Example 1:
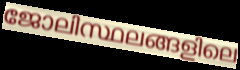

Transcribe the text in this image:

ജോലിസ്ഥലങ്ങളിലെ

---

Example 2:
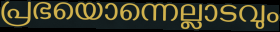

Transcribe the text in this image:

പ്രഭയൊന്നെല്ലാടവും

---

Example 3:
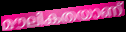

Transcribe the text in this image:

മൗലികതയാണ്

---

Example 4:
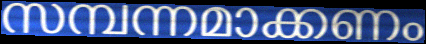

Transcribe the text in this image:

സമ്പന്നമാക്കണം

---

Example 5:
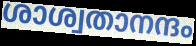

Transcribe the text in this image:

ശാശ്വതാനന്ദം